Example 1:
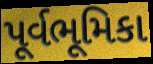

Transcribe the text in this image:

પૂર્વભૂમિકા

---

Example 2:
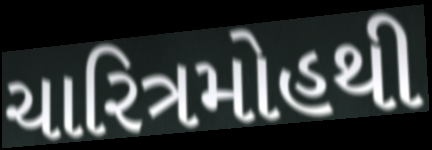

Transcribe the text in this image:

ચારિત્રમોહથી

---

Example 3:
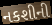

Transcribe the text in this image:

નકશીની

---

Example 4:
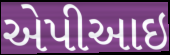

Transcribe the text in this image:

એપીઆઇ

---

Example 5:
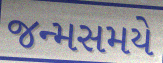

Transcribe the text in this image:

જન્મસમયે